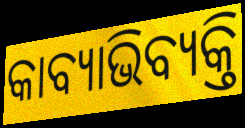
କାବ୍ୟାଭିବ୍ୟକ୍ତି